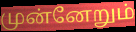
முன்னேறும்